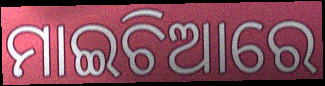
ମାଇଚିଆରେ